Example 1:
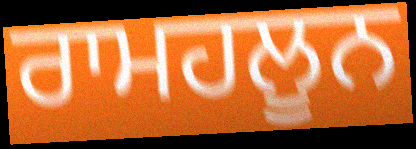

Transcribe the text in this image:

ਰਾਮਹਲੂਨ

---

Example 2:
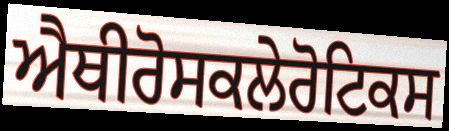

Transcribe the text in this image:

ਐਥੀਰੋਸਕਲੇਰੋਟਿਕਸ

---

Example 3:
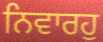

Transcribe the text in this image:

ਨਿਵਾਰਹੁ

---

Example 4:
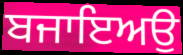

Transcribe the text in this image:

ਬਜਾਇਅਉ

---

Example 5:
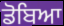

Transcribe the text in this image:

ਡੋਬਿਆ